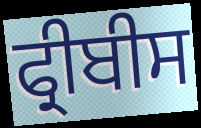
ਫ੍ਰੀਬੀਸ